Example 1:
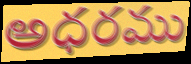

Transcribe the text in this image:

అధరము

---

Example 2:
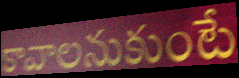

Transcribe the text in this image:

కావాలనుకుంటే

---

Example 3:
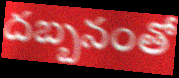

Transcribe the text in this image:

దబ్బనంతో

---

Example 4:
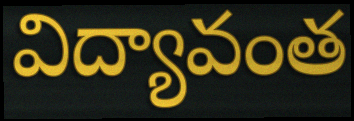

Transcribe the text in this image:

విద్యావంత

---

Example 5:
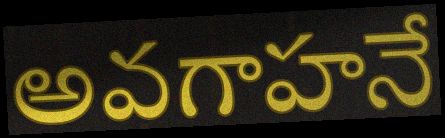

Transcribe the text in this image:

అవగాహనే